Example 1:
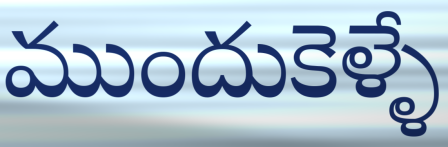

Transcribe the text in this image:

ముందుకెళ్ళే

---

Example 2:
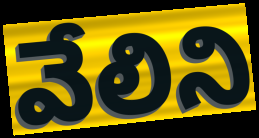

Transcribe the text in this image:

వేలిని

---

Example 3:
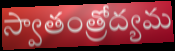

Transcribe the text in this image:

స్వాతంత్రోద్యమ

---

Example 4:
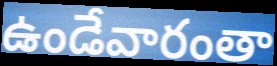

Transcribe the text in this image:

ఉండేవారంతా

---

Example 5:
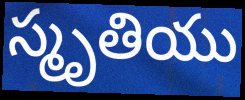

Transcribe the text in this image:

స్మృతియు